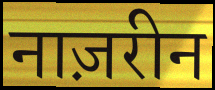
नाज़रीन